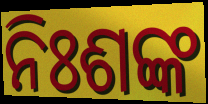
ନିଃଶଙ୍କ